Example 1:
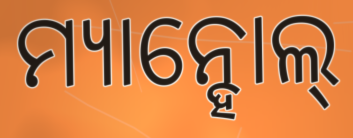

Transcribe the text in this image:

ମ୍ୟାନ୍ହୋଲ୍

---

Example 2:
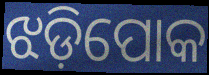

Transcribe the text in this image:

ଝଡ଼ିପୋକ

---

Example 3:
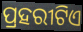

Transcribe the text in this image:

ପ୍ରହରୀଟିଏ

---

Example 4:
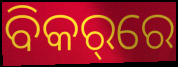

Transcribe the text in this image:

ବିକର୍‌ରେ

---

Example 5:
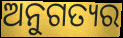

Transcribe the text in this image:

ଅନୁଗତ୍ୟର